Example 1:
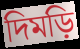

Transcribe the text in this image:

দিমড়ি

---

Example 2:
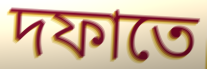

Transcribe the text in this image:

দফাতে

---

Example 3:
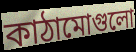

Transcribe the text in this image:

কাঠামোগুলো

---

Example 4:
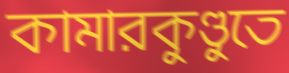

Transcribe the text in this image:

কামারকুণ্ডুতে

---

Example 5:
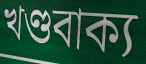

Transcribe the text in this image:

খণ্ডবাক্য